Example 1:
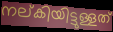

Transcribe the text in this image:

നല്കിയിട്ടുള്ളത്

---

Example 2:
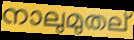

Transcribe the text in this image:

നാലുമുതല്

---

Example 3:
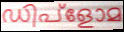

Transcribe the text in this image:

ഡിപ്ളോമ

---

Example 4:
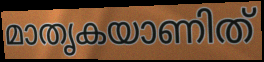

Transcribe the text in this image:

മാതൃകയാണിത്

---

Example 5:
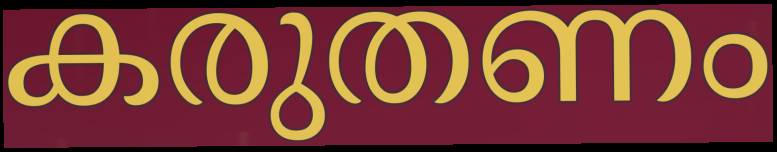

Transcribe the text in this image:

കരുതണം